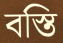
বস্তি